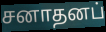
சனாதனப்